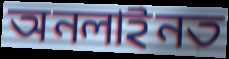
অনলাইনত